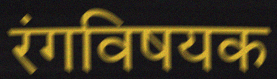
रंगविषयक